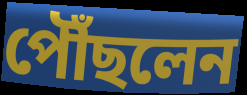
পৌঁছলেন